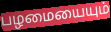
பழமையையும்